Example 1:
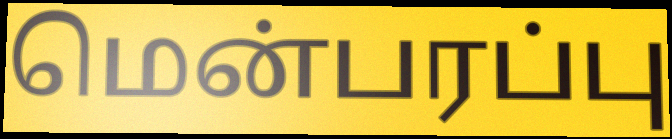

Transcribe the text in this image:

மென்பரப்பு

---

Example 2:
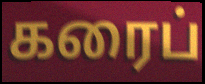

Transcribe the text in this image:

கரைப்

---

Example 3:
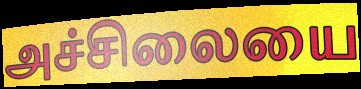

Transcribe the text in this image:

அச்சிலையை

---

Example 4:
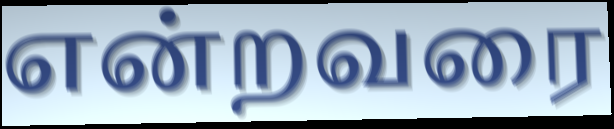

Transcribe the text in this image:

என்றவரை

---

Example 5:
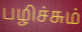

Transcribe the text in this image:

பழிச்சும்